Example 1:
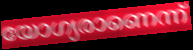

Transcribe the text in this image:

യോഗ്യരാണെന്ന്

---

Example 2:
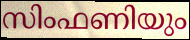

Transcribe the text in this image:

സിംഫണിയും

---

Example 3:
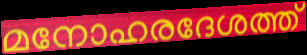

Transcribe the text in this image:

മനോഹരദേശത്ത്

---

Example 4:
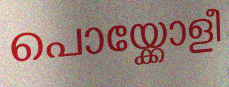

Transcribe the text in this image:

പൊയ്ക്കോളീ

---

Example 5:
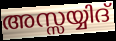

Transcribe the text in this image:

അസ്സയ്യിദ്